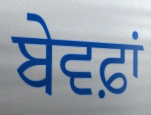
ਬੇਵਫ਼ਾਂ